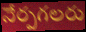
నేర్పగలరు